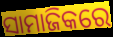
ସାମାଜିକରେ